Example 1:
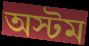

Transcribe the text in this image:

অস্টম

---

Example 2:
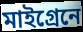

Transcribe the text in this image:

মাইগ্রেনে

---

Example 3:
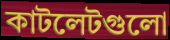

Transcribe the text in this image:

কাটলেটগুলো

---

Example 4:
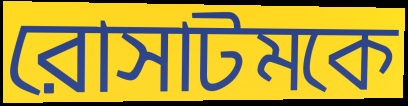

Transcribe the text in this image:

রোসাটমকে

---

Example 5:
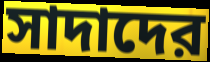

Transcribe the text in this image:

সাদাদের